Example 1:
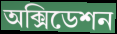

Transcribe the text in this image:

অক্সিডেশন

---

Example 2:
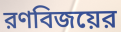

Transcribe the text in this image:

রণবিজয়ের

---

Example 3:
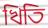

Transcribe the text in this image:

খিতি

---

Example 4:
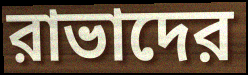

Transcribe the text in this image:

রাভাদের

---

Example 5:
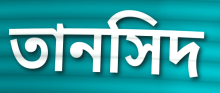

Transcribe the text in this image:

তানসিদ